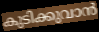
കുടിക്കുവാൻ